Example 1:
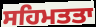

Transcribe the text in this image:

ਸਹਿਮਤਤਾ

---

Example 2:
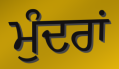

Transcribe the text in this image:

ਮੁੰਦਰਾਂ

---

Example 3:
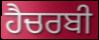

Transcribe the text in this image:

ਹੈਚਰਬੀ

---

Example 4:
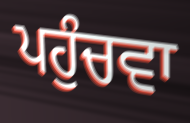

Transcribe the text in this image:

ਪਹੁੰਚਵਾ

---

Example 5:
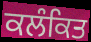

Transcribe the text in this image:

ਕਲੰਕਿਤ